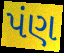
પંણ